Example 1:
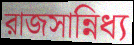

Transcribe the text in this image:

রাজসান্নিধ্য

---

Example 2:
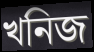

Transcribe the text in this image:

খনিজ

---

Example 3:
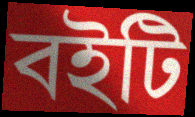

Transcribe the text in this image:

বইটি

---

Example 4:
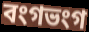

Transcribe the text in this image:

বংগভংগ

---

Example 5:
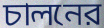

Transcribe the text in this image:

চালনের